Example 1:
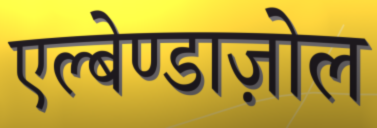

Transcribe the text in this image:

एल्बेण्डाज़ोल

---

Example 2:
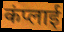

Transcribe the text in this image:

कंप्लाई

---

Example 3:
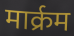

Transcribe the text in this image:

मार्क्रम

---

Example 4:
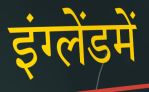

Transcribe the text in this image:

इंग्लेंडमें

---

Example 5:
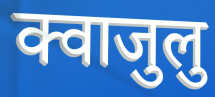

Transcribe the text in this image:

क्वाजुलु